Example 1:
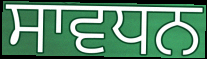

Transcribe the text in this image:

ਸਾਵਧਨ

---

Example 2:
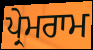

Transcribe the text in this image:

ਪ੍ਰੇਮਰਾਮ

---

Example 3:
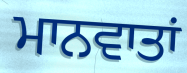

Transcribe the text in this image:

ਮਾਨਵਾਤਾਂ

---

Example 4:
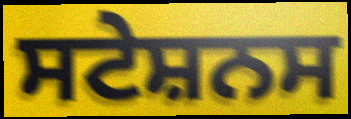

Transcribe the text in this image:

ਸਟੇਸ਼ਨਸ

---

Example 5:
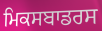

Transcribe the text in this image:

ਮਿਕਸਬਾਡਰਸ